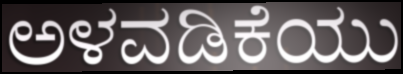
ಅಳವಡಿಕೆಯು